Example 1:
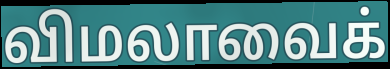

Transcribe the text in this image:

விமலாவைக்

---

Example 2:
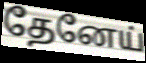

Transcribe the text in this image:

தேனேய்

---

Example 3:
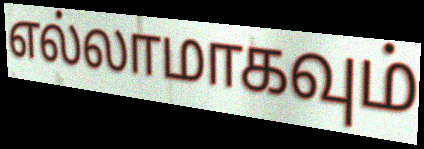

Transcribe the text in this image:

எல்லாமாகவும்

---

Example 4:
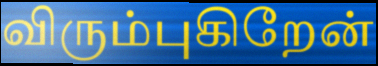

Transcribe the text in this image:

விரும்புகிறேன்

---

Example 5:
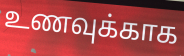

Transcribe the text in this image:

உணவுக்காக